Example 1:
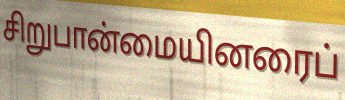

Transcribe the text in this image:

சிறுபான்மையினரைப்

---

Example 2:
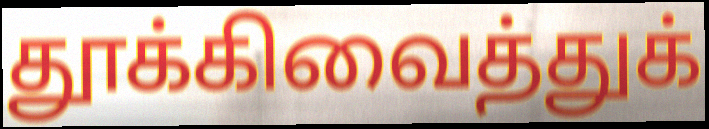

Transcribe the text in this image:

தூக்கிவைத்துக்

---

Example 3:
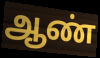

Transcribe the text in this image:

ஆண்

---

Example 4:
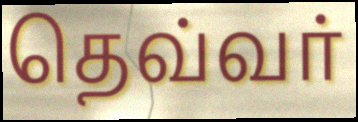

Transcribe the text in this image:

தெவ்வர்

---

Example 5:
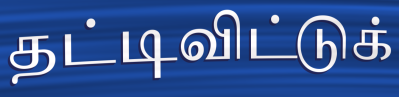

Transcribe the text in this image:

தட்டிவிட்டுக்